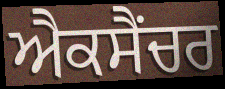
ਐਕਸੈਂਚਰ